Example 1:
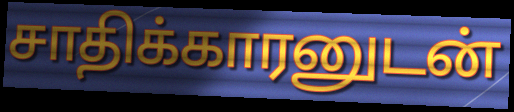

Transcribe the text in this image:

சாதிக்காரனுடன்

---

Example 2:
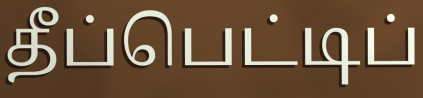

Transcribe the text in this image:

தீப்பெட்டிப்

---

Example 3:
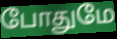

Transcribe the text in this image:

போதுமே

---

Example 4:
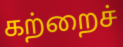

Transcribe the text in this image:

கற்றைச்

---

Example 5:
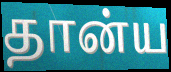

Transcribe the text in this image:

தான்ய